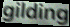
gilding